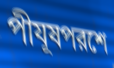
পীযূষপরশে